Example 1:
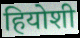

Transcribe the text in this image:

हियोशी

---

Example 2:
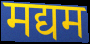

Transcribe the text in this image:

मद्यम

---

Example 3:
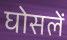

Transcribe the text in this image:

घोसलें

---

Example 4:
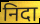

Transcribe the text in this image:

निदा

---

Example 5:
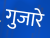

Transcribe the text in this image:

गुजारे